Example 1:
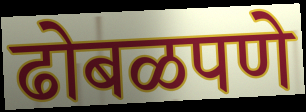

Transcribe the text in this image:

ढोबळपणे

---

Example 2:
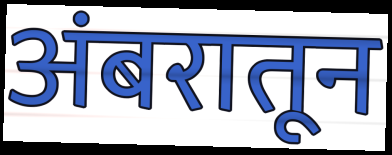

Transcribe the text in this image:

अंबरातून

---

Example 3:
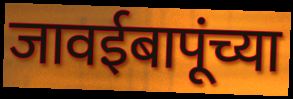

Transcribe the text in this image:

जावईबापूंच्या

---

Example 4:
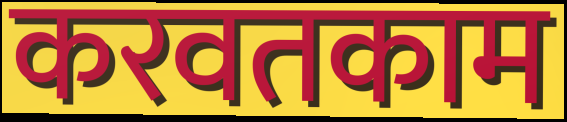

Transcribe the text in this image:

करवतकाम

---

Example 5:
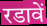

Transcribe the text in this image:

रडावें